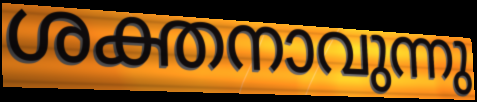
ശക്തനാവുന്നു